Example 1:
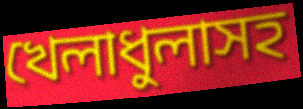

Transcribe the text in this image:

খেলাধুলাসহ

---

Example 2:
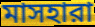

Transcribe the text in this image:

মাসহারা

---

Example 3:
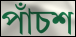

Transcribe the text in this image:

পাঁচশ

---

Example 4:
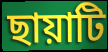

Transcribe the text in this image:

ছায়াটি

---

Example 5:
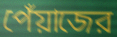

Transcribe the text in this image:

পেঁয়াজের